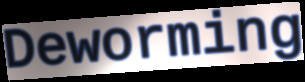
Deworming